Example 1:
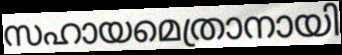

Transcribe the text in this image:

സഹായമെത്രാനായി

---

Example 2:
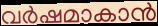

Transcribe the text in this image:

വർഷമാകാൻ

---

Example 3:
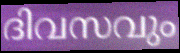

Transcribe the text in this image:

ദിവസവും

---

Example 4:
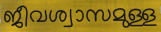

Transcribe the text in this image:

ജീവശ്വാസമുള്ള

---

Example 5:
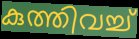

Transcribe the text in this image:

കുത്തിവച്ച്